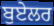
ਬੁਏਲਰ